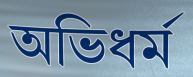
অভিধর্ম